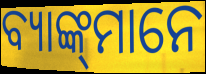
ବ୍ୟାଙ୍କ୍‌ମାନେ